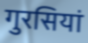
गुरसियां